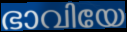
ഭാവിയേ